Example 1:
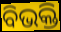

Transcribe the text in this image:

ବିଭକ୍ତି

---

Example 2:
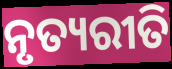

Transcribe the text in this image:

ନୃତ୍ୟରୀତି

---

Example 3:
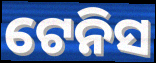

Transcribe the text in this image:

ଟେନିସ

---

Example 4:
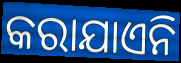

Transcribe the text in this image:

କରାଯାଏନି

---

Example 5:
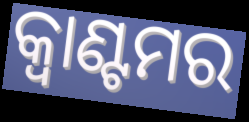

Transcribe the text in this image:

କ୍ୱାଣ୍ଟମର